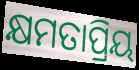
କ୍ଷମତାପ୍ରିୟ